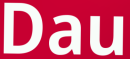
Dau